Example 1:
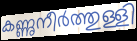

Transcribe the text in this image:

കണ്ണുനീർത്തുള്ളി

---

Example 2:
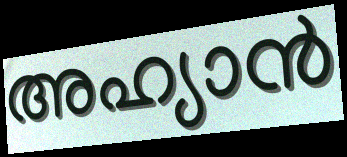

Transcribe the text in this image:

അഹ്യാൻ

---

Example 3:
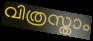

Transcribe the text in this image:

വിത്രസ്താം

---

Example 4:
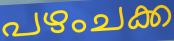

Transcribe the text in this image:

പഴംചക്ക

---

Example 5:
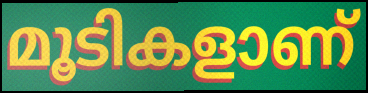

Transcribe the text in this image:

മൂടികളാണ്